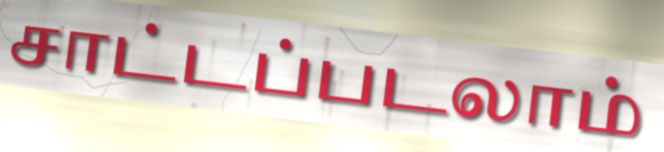
சாட்டப்படலாம்